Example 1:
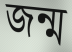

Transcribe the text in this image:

জন্ম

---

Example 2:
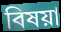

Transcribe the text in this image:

বিষয়া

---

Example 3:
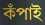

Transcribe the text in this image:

কঁপাই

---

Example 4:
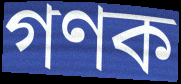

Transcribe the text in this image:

গণক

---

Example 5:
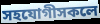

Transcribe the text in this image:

সহযোগীসকলে